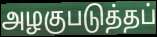
அழகுபடுத்தப்